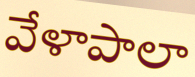
వేళాపాలా